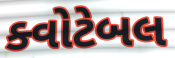
ક્વોટેબલ